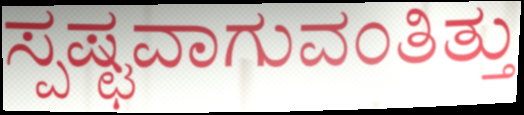
ಸ್ಪಷ್ಟವಾಗುವಂತಿತ್ತು